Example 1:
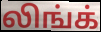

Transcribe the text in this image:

லிங்க்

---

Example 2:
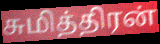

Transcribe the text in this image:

சுமித்திரன்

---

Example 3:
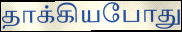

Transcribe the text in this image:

தாக்கியபோது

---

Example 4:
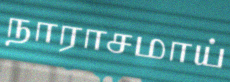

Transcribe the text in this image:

நாராசமாய்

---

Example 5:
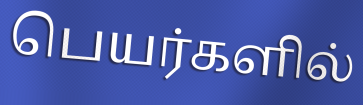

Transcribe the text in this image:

பெயர்களில்